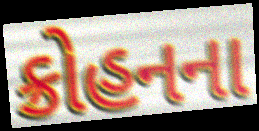
ક્રોહનના